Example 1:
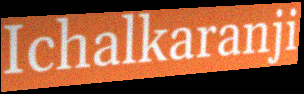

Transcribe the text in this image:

Ichalkaranji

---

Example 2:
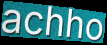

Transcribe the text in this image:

achho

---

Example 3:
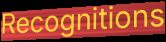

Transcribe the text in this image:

Recognitions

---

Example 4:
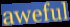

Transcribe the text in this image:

aweful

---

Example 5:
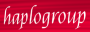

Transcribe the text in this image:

haplogroup